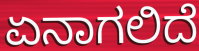
ಏನಾಗಲಿದೆ